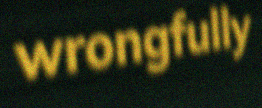
wrongfully